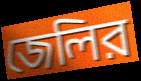
জেলির